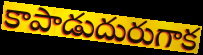
కాపాడుదురుగాక